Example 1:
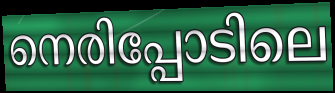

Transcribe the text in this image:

നെരിപ്പോടിലെ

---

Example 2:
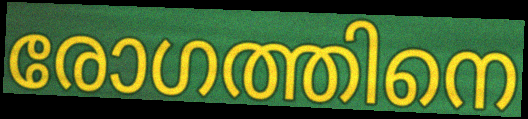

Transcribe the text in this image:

രോഗത്തിനെ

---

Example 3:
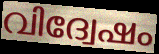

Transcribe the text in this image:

വിദ്വേഷം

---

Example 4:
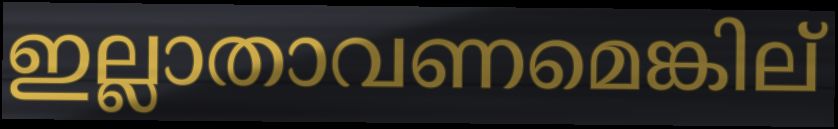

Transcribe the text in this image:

ഇല്ലാതാവണമെങ്കില്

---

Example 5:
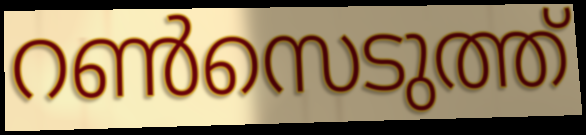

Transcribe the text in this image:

റൺസെടുത്ത്